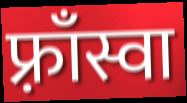
फ़्राँस्वा